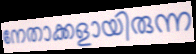
നേതാക്കളായിരുന്ന